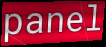
panel